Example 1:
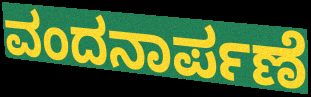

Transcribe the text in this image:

ವಂದನಾರ್ಪಣೆ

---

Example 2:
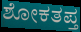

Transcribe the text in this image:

ಶೋಕತಪ್ತ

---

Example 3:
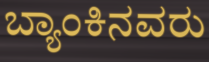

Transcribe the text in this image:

ಬ್ಯಾಂಕಿನವರು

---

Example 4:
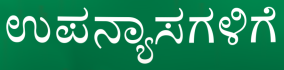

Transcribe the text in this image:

ಉಪನ್ಯಾಸಗಳಿಗೆ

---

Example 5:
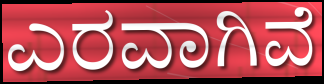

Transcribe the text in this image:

ಎರವಾಗಿವೆ